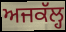
ਅਜਕੱਲ੍ਹ